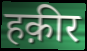
हक़ीर